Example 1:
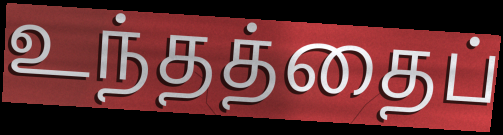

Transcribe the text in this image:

உந்தத்தைப்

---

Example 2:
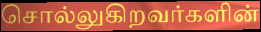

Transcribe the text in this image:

சொல்லுகிறவர்களின்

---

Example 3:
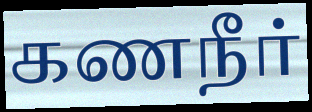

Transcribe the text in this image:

கணநீர்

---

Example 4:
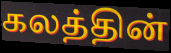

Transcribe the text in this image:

கலத்தின்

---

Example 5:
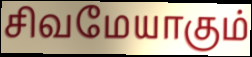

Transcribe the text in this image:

சிவமேயாகும்